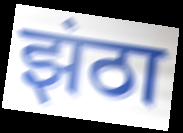
झंठा